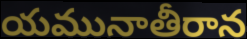
యమునాతీరాన